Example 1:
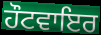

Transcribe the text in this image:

ਹੌਟਵਾਇਰ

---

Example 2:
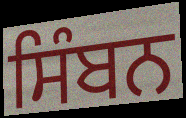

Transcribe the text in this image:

ਸਿੰਬਨ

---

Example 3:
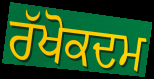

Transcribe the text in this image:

ਰੱਖੋਕਦਮ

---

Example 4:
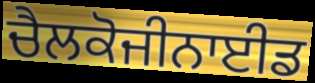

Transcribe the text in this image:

ਚੈਲਕੋਜੀਨਾਈਡ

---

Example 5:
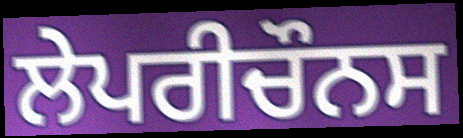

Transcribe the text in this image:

ਲੇਪਰੀਚੌਨਸ